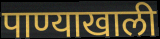
पाण्‍याखाली